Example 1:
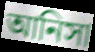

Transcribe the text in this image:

আনিসা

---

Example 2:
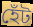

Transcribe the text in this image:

হেঁট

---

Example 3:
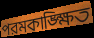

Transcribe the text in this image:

পরমকাঙ্ক্ষিত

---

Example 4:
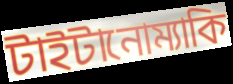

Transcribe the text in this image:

টাইটানোম্যাকি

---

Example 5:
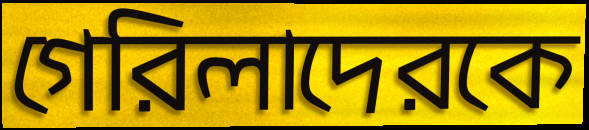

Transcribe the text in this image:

গেরিলাদেরকে